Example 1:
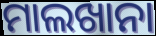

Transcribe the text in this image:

ମାଲଖାନା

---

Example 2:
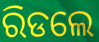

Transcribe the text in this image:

ରିଡଲେ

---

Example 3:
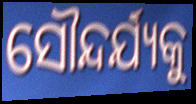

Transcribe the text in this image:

ସୌନ୍ଦର୍ଯ୍ୟକୁ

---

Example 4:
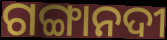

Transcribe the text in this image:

ଗଙ୍ଗାନଦୀ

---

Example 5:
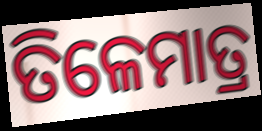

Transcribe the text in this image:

ତିଳେମାତ୍ର